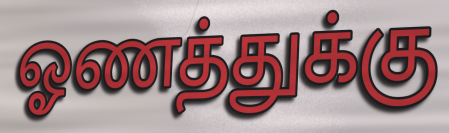
ஓணத்துக்கு